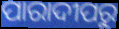
ପାରାଦୀପରୁ